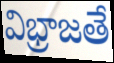
విభ్రాజతే